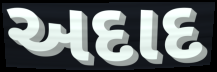
અદાદ